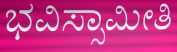
ಭವಿಸ್ಸಾಮೀತಿ